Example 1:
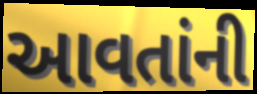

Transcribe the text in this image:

આવતાંની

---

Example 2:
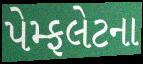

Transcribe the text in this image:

પેમ્ફલેટના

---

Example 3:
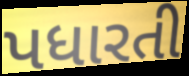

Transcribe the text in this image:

પધારતી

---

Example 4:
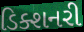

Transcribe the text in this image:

ડિક્શનરી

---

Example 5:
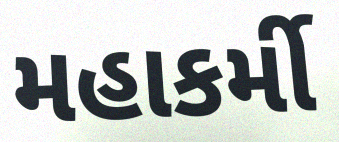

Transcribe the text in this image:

મહાકર્મી